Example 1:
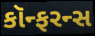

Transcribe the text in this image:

કૉન્ફરન્સ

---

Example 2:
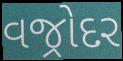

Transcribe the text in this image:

વજ્રોદર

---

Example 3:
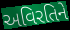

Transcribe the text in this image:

અવિરતિને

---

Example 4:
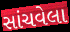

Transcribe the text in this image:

સાંચવેલા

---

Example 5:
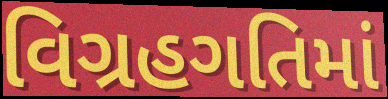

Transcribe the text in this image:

વિગ્રહગતિમાં